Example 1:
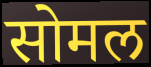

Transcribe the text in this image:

सोमल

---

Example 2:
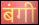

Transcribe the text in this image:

बंगी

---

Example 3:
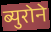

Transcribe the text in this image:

ब्युरोने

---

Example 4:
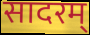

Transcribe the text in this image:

सादरम्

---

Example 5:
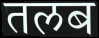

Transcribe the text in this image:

तलब